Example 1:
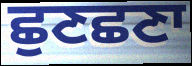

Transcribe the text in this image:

ਛੁਣਛਣਾ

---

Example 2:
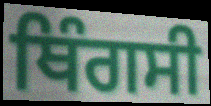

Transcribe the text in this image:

ਥਿੰਗਸੀ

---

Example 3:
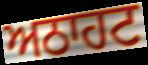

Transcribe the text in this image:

ਅਠਾਹਟ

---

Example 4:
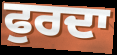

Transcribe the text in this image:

ਫੁਰਦਾ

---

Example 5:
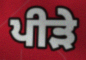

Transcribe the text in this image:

ਪੀੜੇ